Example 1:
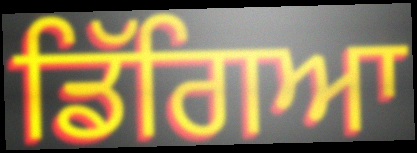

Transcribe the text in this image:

ਡਿੱਗਿਆ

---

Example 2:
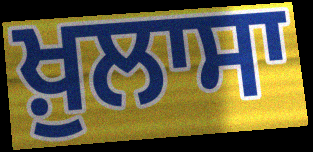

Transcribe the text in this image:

ਖ਼ੁਲਾਸਾ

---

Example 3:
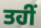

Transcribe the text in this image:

ਤਹੀਂ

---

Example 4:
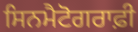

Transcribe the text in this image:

ਸਿਨਮੈਟੋਗਰਾਫ਼ੀ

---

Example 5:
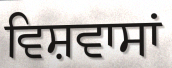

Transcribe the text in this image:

ਵਿਸ਼ਵਾਸਾਂ